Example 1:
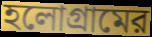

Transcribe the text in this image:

হলোগ্রামের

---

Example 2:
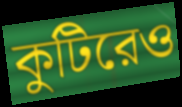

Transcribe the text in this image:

কুটিরেও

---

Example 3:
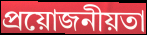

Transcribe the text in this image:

প্রয়োজনীয়তা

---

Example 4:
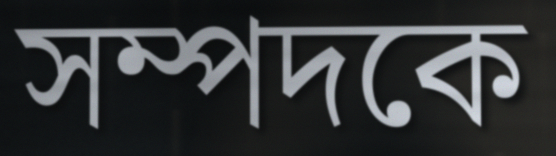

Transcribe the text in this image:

সম্পদকে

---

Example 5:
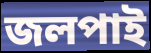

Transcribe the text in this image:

জলপাই